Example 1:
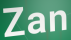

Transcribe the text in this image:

Zan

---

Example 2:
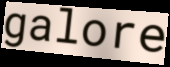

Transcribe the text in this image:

galore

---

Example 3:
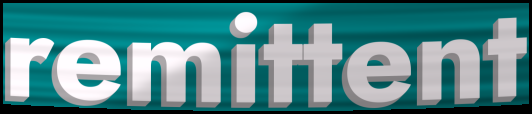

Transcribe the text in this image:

remittent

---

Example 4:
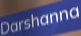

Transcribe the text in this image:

Darshanna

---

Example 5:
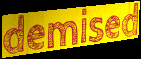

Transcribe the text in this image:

demised